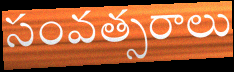
సంవత్సరాలు